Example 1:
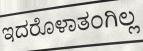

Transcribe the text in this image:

ಇದರೊಳಾತಂಗಿಲ್ಲ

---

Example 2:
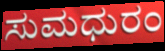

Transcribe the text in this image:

ಸುಮಧುರಂ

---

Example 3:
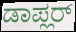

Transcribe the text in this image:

ಡಾಪ್ಲರ್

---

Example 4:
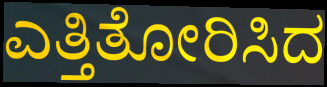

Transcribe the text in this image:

ಎತ್ತಿತೋರಿಸಿದ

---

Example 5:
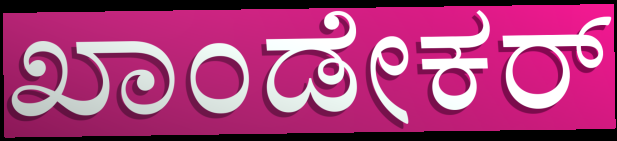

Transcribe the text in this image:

ಖಾಂಡೇಕರ್